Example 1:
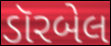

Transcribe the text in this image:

ડૉરબેલ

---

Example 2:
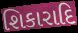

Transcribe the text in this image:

શિકારાદિ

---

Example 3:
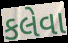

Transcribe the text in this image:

કલેવા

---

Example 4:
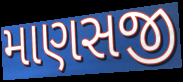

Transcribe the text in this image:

માણસજી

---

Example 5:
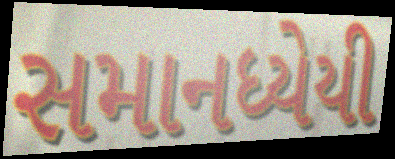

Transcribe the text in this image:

સમાનધ્યેયી